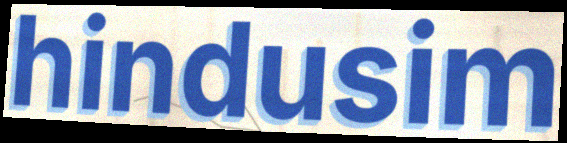
hindusim